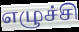
எழுச்சி